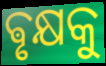
ଵୃକ୍ଷକୁ